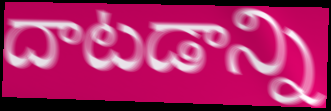
దాటడాన్ని